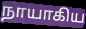
நாயாகிய